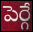
పెర్గే